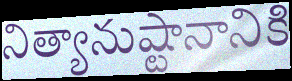
నిత్యానుష్టానానికి